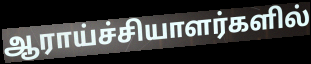
ஆராய்ச்சியாளர்களில்